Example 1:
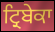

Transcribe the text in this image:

ਟ੍ਰਿਬੇਕਾ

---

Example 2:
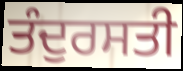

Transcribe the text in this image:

ਤੰਦੁਰਸਤੀ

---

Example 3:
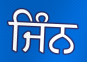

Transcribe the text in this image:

ਜਿੰਨ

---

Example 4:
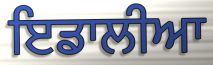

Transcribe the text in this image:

ਇਡਾਲੀਆ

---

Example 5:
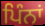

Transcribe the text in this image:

ਪਿੰਨਾਂ